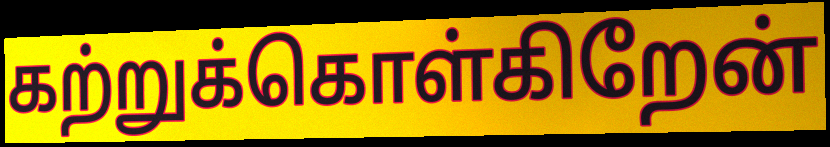
கற்றுக்கொள்கிறேன்